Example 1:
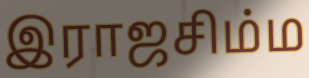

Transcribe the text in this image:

இராஜசிம்ம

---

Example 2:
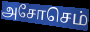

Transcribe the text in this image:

அசோசெம்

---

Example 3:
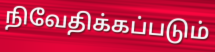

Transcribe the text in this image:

நிவேதிக்கப்படும்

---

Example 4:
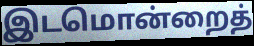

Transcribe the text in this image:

இடமொன்றைத்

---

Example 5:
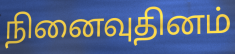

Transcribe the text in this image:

நினைவுதினம்